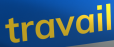
travail